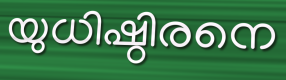
യുധിഷ്ഠിരനെ